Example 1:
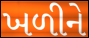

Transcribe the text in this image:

ખળીને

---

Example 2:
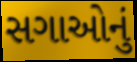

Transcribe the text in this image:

સગાઓનું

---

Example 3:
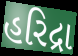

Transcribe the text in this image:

હરિદ્રા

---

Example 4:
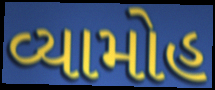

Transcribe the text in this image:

વ્યામોહ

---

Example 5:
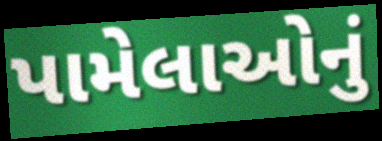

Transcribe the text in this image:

પામેલાઓનું